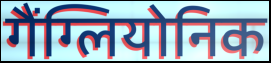
गैंग्लियोनिक